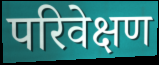
परिवेक्षण